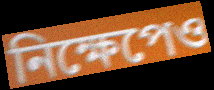
নিক্ষেপেও